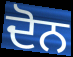
ਦੋਨ